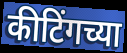
कीटिंगच्या